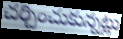
చర్చించుకున్నట్లు